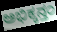
ಅಭಿಕ್ಕನ್ತಂ